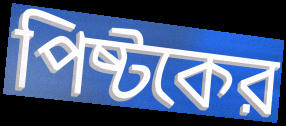
পিষ্টকের